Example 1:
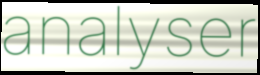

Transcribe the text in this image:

analyser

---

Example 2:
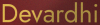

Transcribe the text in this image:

Devardhi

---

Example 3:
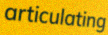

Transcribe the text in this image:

articulating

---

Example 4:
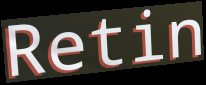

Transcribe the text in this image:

Retin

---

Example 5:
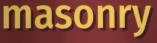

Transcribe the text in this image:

masonry